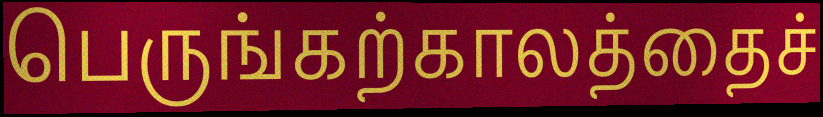
பெருங்கற்காலத்தைச்